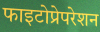
फाइटोप्रेपरेशन